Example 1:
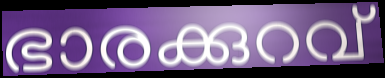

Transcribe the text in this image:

ഭാരക്കുറവ്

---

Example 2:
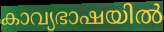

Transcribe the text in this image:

കാവ്യഭാഷയിൽ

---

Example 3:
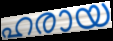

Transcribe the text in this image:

ഹരായ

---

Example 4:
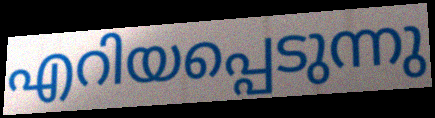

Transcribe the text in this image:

എറിയപ്പെടുന്നു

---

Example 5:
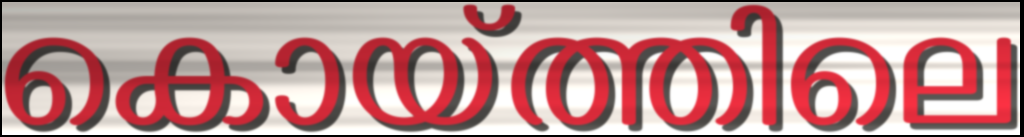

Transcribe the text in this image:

കൊയ്ത്തിലെ